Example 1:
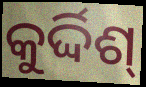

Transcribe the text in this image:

କୁର୍ଦ୍ଦିଶ୍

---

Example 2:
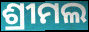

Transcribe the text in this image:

ଶ୍ରୀମଲ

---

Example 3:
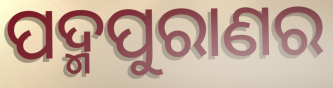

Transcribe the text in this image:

ପଦ୍ମପୁରାଣର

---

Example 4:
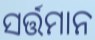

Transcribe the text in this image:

ସର୍ତ୍ତମାନ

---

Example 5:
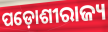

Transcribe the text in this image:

ପଡ଼ୋଶୀରାଜ୍ୟ